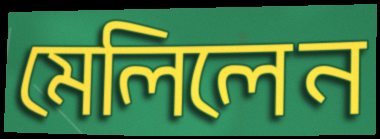
মেলিলেন